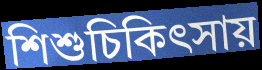
শিশুচিকিৎসায়